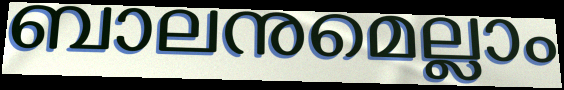
ബാലനുമെല്ലാം